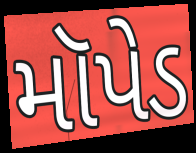
મૉપેડ